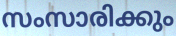
സംസാരിക്കും